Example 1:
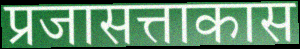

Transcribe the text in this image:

प्रजासत्ताकास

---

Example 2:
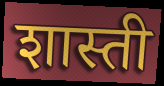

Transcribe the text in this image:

शास्ती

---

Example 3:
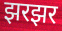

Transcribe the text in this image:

झरझर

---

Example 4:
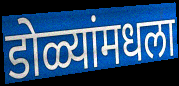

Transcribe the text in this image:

डोळ्यांमधला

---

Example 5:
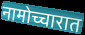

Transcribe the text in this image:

नामोच्चारात